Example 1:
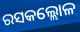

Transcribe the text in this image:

ରସକଲ୍ଲୋଳ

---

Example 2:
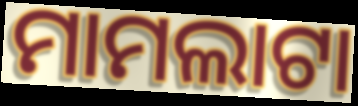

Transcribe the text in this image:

ମାମଲାଟା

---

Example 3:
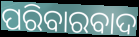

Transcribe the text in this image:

ପରିବାରବାଦ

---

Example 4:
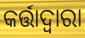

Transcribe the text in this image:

କର୍ତ୍ତାଦ୍ଵାରା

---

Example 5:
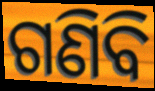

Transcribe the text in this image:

ଗଣିବି